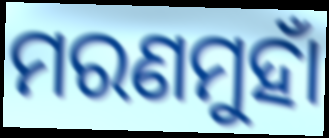
ମରଣମୁହାଁ